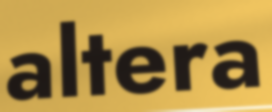
altera